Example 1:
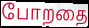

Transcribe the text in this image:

போறதை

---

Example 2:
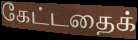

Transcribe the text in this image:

கேட்டதைக்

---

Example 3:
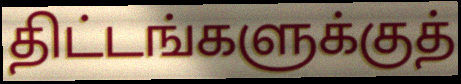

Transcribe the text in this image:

திட்டங்களுக்குத்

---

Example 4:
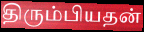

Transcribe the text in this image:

திரும்பியதன்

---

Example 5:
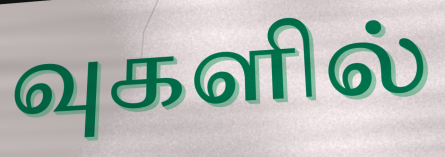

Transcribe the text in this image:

வுகளில்